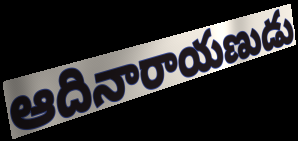
ఆదినారాయణుడు